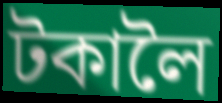
টকালৈ